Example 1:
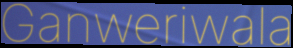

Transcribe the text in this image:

Ganweriwala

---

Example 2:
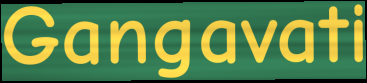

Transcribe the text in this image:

Gangavati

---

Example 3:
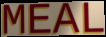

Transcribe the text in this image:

MEAL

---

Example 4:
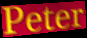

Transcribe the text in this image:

Peter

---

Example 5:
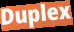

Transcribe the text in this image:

Duplex